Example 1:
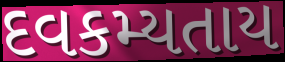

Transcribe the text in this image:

દવકમ્યતાય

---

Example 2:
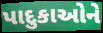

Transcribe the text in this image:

પાદુકાઓને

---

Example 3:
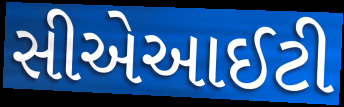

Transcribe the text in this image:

સીએઆઈટી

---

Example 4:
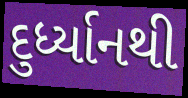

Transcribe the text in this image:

દુર્ધ્યાનથી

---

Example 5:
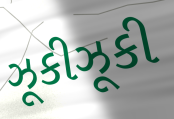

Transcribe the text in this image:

ઝૂકીઝૂકી